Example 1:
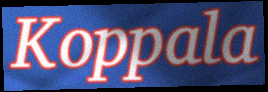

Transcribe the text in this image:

Koppala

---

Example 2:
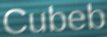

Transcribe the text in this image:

Cubeb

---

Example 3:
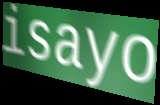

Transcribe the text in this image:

isayo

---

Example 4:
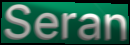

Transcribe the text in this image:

Seran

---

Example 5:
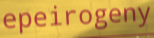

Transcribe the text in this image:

epeirogeny